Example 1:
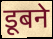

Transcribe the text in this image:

डूबने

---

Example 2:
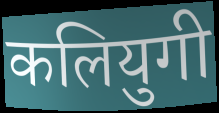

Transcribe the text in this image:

कलियुगी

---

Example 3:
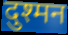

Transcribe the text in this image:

दुश्मन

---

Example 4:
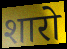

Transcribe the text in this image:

शारो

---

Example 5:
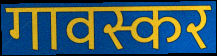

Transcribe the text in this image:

गावस्कर